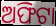
ଅଫିଟା